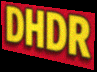
DHDR